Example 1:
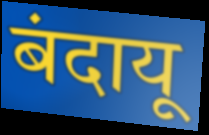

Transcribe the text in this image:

बंदायू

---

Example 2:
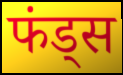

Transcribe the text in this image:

फंड्स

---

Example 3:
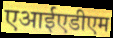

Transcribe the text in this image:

एआईएडीएम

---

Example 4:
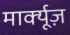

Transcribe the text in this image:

मार्क्यूज़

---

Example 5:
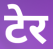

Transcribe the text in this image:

टेर